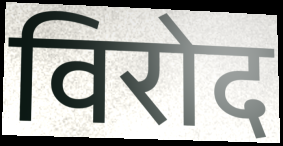
विरोद